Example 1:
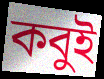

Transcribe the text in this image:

কবুই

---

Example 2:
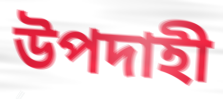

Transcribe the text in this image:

উপদাহী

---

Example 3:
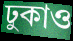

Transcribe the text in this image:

ঢুকাও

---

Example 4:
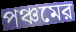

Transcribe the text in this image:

পঞ্চমের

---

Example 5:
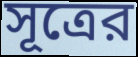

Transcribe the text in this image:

সূত্রের